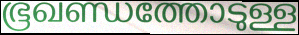
ഭൂഖണ്ഡത്തോടുള്ള